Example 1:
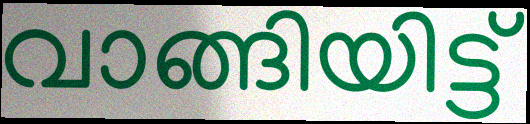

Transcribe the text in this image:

വാങ്ങിയിട്ട്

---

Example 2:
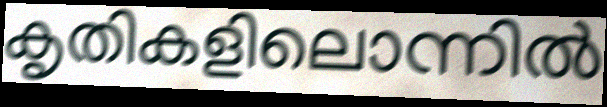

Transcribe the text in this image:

കൃതികളിലൊന്നിൽ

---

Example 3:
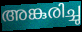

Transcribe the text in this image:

അങ്കുരിച്ചു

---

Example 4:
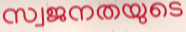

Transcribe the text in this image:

സ്വജനതയുടെ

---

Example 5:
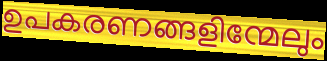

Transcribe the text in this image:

ഉപകരണങ്ങളിന്മേലും